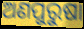
ଅଣପୁରୁଷା